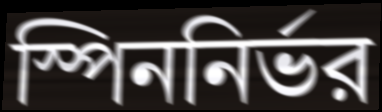
স্পিননির্ভর